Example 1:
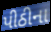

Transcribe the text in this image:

પીઠીના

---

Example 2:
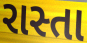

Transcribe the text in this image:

રાસ્તા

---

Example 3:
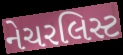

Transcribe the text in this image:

નેચરલિસ્ટ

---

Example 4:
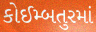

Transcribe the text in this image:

કોઈમ્બતુરમાં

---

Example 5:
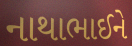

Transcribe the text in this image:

નાથાભાઈને